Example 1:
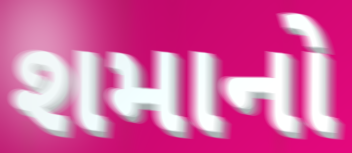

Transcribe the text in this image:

શમાનો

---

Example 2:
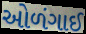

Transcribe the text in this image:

ઓળંગાઈ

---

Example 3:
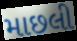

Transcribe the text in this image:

માછલી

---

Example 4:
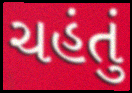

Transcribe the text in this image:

ચહંતું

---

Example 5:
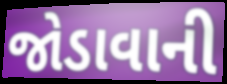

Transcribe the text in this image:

જોડાવાની